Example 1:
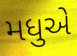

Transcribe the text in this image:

મધુએ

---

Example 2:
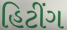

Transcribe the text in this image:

હિટીંગ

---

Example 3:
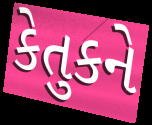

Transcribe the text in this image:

કેતુકને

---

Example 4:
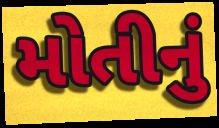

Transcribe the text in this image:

મોતીનું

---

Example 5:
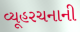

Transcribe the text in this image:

વ્યૂહરચનાની